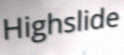
Highslide